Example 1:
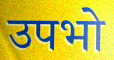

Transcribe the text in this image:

उपभो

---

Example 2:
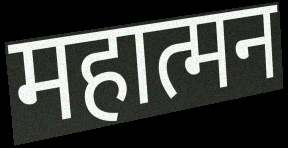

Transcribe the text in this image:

महात्मन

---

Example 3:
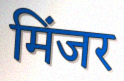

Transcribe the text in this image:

मिंजर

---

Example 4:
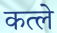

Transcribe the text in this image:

कत्ले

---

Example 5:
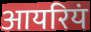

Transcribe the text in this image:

आयरियं